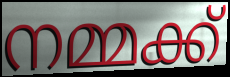
നമ്മക്ക്